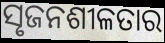
ସୃଜନଶୀଳତାର